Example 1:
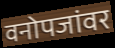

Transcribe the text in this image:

वनोपजांवर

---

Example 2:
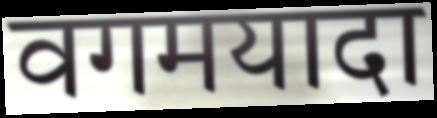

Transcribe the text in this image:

वगमयादा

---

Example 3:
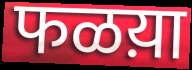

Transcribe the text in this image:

फळय़ा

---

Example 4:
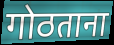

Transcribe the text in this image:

गोठताना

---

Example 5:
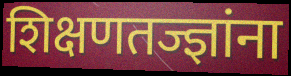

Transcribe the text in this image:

शिक्षणतज्ज्ञांना